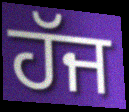
ਹੱਜ